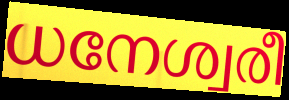
ധനേശ്വരീ